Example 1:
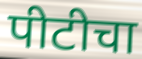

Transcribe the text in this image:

पीटीचा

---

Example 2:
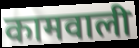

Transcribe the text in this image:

कामवाली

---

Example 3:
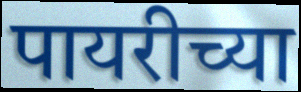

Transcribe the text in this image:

पायरीच्या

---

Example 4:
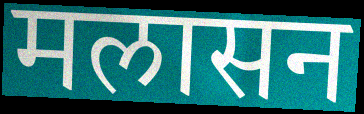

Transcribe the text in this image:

मलासन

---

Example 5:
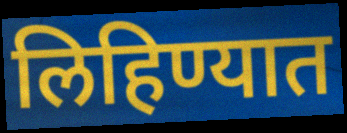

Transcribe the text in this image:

लिहिण्यात